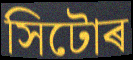
সিটোৰ